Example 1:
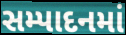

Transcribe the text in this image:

સમ્પાદનમાં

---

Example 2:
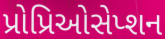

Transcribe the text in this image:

પ્રોપ્રિઓસેપ્શન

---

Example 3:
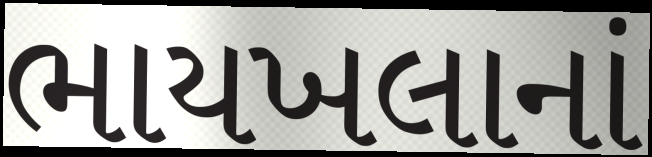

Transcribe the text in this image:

ભાયખલાનાં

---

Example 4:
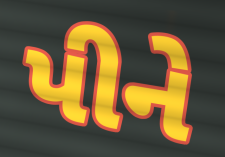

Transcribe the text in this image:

પીને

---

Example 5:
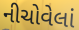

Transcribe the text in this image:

નીચોવેલાં